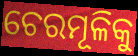
ଚେରମୂଳିକୁ